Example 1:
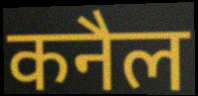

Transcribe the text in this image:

कनैल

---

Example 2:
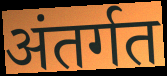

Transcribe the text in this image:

अंतर्गत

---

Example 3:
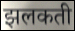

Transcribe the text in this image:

झलकती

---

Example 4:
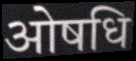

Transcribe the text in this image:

ओषधि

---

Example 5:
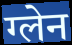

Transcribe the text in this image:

ग्लेन